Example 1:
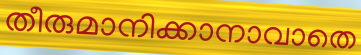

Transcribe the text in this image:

തീരുമാനിക്കാനാവാതെ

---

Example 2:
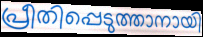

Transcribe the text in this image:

പ്രീതിപ്പെടുത്താനായി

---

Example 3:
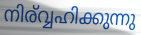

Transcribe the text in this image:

നിര്വ്വഹിക്കുന്നു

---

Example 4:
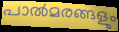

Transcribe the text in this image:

പാൽമരങ്ങളും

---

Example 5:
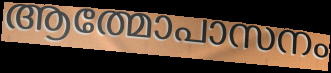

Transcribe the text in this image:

ആത്മോപാസനം